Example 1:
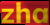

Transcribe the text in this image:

zha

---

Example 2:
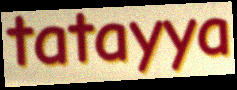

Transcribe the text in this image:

tatayya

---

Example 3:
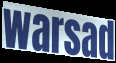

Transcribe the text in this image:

warsad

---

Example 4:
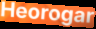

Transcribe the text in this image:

Heorogar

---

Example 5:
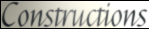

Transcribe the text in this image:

Constructions